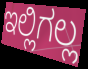
ಇಲ್ಲಿಗಲ್ಲ